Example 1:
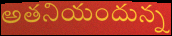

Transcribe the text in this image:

అతనియందున్న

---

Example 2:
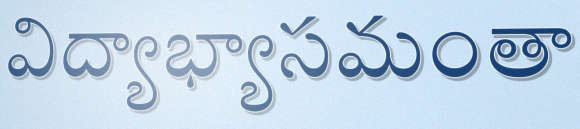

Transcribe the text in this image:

విద్యాభ్యాసమంతా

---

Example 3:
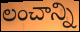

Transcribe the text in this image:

లంచాన్ని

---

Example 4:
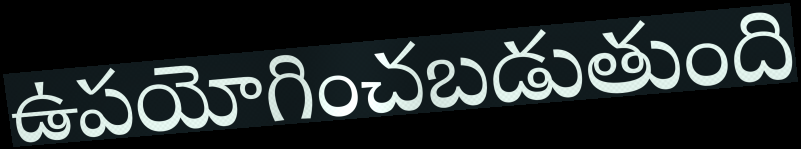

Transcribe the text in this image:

ఉపయోగించబడుతుంది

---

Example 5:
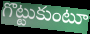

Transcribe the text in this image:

గొట్టుకుంటూ